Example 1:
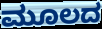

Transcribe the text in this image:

ಮೂಲದ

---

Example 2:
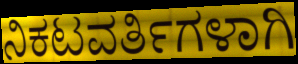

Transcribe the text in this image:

ನಿಕಟವರ್ತಿಗಳಾಗಿ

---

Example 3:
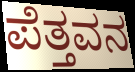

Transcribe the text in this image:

ಪೆತ್ತವನ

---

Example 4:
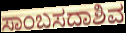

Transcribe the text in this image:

ಸಾಂಬಸದಾಶಿವ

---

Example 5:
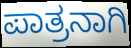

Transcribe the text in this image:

ಪಾತ್ರನಾಗಿ